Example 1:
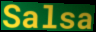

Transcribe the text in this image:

Salsa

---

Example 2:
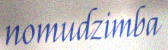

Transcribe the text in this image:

nomudzimba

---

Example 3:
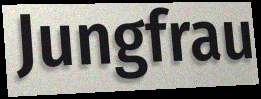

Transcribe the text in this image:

Jungfrau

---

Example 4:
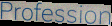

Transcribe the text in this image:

Profession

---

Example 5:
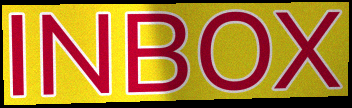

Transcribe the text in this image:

INBOX